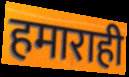
हमाराही